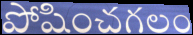
పోషించగలం